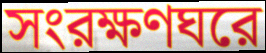
সংরক্ষণঘরে